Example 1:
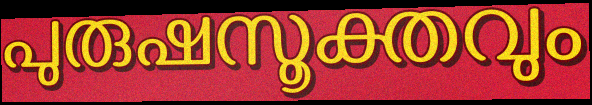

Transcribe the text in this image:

പുരുഷസൂക്തവും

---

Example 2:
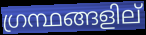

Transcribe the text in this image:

ഗ്രന്ഥങ്ങളില്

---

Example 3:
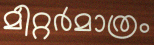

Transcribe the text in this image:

മീറ്റർമാത്രം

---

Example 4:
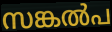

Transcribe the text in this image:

സങ്കൽപ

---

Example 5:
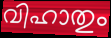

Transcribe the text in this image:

വിഹാതും